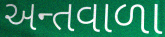
અન્તવાળા